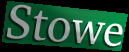
Stowe